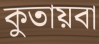
কুতায়বা